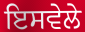
ਇਸਵੇਲੇ